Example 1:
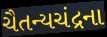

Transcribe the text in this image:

ચૈતન્યચંદ્રના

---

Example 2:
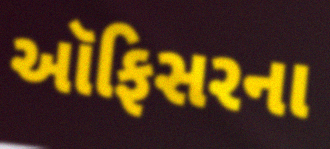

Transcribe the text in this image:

ઑફિસરના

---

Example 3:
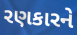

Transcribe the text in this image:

રણકારને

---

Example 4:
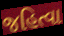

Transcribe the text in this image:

જહિત્વા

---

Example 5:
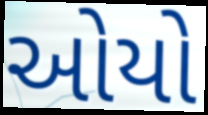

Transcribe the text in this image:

ઓયો